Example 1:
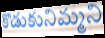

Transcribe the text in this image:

కొడుకునిమ్మని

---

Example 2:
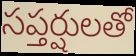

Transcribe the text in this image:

సప్తర్షులతో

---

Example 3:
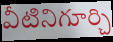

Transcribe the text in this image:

వీటినిగూర్చి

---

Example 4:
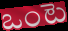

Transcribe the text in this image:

ఒంటె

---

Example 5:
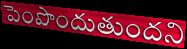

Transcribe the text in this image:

పెంపొందుతుందని